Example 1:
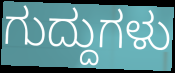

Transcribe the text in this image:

ಗುದ್ದುಗಳು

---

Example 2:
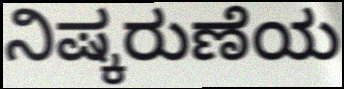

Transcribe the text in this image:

ನಿಷ್ಕರುಣೆಯ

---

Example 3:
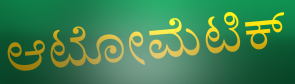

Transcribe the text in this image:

ಆಟೋಮೆಟಿಕ್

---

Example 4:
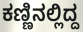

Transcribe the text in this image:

ಕಣ್ಣಿನಲ್ಲಿದ್ದ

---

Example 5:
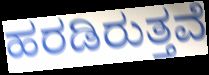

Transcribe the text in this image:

ಹರಡಿರುತ್ತವೆ